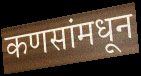
कणसांमधून